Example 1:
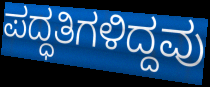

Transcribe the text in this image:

ಪದ್ಧತಿಗಳಿದ್ದವು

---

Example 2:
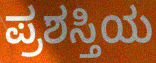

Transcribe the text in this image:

ಪ್ರಶಸ್ತಿಯ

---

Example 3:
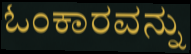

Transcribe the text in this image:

ಓಂಕಾರವನ್ನು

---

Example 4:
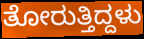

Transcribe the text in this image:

ತೋರುತ್ತಿದ್ದಳು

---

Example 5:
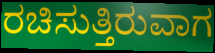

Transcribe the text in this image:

ರಚಿಸುತ್ತಿರುವಾಗ